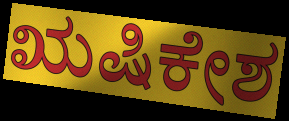
ಋಷಿಕೇಶ